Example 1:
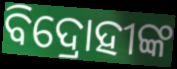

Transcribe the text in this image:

ବିଦ୍ରୋହୀଙ୍କ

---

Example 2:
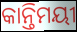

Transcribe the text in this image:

କାନ୍ତିମୟୀ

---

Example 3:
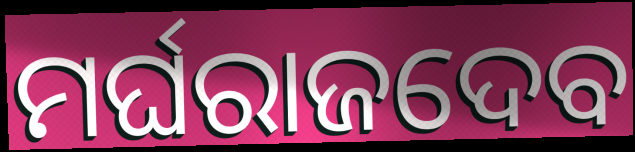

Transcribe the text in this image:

ମର୍ଘରାଜଦେବ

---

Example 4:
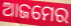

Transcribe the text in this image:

ଆଜମେର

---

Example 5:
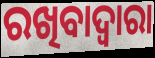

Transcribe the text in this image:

ରଖିବାଦ୍ୱାରା